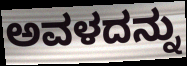
ಅವಳದನ್ನು